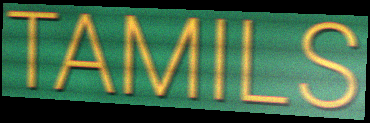
TAMILS